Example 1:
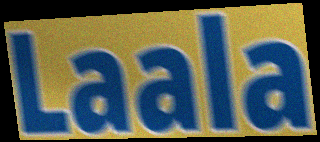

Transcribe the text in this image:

Laala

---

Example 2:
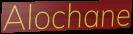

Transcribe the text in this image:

Alochane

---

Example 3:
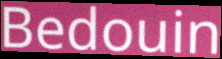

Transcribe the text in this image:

Bedouin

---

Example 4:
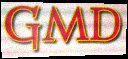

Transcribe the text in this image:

GMD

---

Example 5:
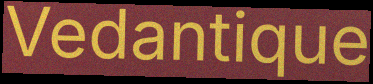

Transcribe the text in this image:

Vedantique